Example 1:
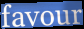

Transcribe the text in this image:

favour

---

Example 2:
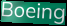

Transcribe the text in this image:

Boeing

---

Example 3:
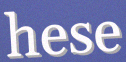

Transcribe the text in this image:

hese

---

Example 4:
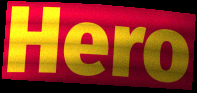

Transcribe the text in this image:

Hero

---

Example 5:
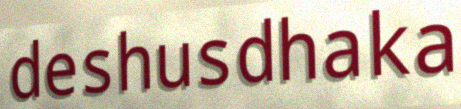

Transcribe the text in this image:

deshusdhaka